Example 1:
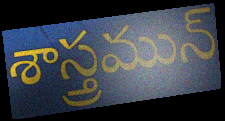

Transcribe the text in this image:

శాస్త్రమున్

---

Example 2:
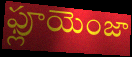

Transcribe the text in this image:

ఫ్లూయెంజా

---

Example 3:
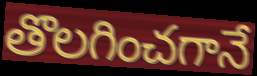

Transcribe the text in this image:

తొలగించగానే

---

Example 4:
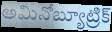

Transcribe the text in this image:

అమినోబ్యూట్రిక్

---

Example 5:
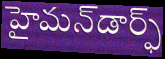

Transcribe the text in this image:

హైమన్‌డార్ఫ్